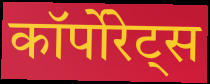
कॉर्पोरेट्स